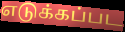
எடுக்கப்பட